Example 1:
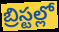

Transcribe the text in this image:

బ్రిస్టల్లో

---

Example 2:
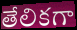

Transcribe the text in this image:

తేలికగా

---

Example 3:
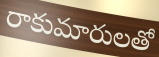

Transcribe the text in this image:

రాకుమారులతో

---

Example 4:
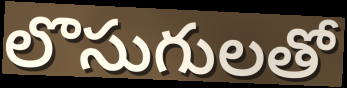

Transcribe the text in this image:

లొసుగులతో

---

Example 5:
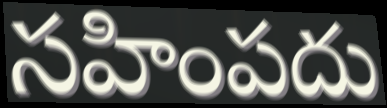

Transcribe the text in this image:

సహింపదు